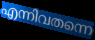
എന്നിവതന്നെ